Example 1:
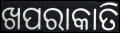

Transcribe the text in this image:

ଖପରାକାତି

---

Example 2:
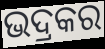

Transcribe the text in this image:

ଭଦ୍ରକର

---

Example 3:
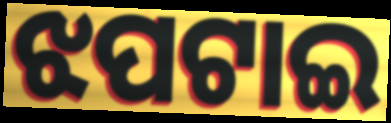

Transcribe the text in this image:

ଝପଟାଇ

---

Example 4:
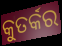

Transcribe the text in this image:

କୁତର୍କର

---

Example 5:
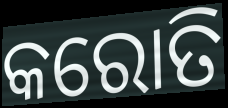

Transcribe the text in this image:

କରୋତି